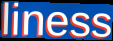
liness